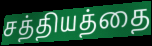
சத்தியத்தை